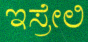
ಇಸ್ರೇಲಿ